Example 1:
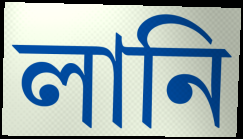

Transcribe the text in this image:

লানি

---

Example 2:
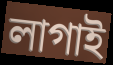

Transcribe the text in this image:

লাগাই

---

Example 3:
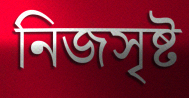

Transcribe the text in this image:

নিজসৃষ্ট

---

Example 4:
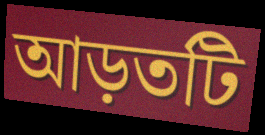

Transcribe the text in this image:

আড়তটি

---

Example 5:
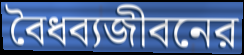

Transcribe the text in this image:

বৈধব্যজীবনের